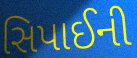
સિપાઈની